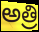
అత్రి